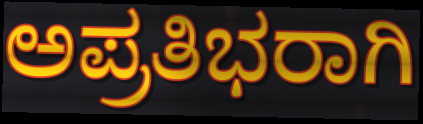
ಅಪ್ರತಿಭರಾಗಿ